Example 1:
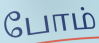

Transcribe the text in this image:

போம்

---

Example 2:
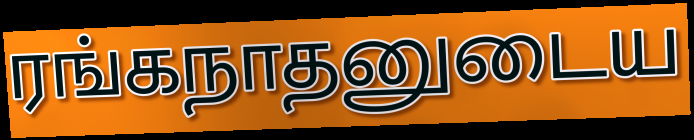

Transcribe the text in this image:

ரங்கநாதனுடைய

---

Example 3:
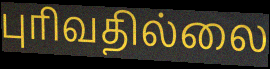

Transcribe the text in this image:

புரிவதில்லை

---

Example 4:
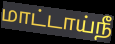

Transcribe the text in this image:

மாட்டாய்நீ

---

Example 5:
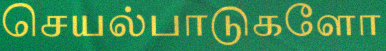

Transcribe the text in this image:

செயல்பாடுகளோ